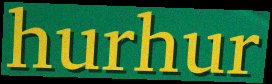
hurhur